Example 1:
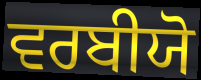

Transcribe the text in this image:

ਵਰਬੀਯੋ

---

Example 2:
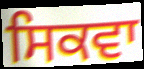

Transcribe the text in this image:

ਸਿਕਵਾ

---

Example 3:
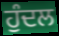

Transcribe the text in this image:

ਹੁੰਦਲ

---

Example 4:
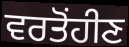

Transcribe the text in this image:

ਵਰਤੋਂਹੀਣ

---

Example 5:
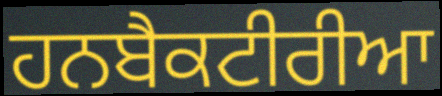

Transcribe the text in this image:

ਹਨਬੈਕਟੀਰੀਆ